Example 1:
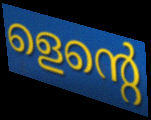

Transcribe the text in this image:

ളെന്റെ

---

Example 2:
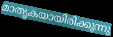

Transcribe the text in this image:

മാതൃകയായിരിക്കുന്നു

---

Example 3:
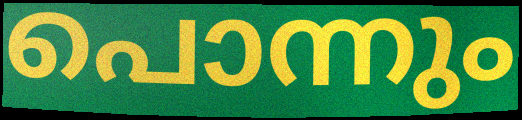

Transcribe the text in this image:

പൊന്നും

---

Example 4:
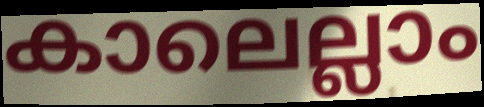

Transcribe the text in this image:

കാലെല്ലാം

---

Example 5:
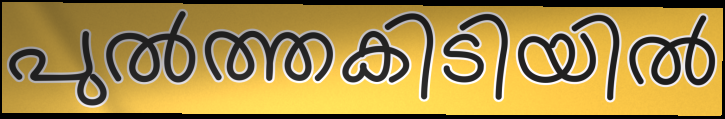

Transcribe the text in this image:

പുൽത്തകിടിയിൽ